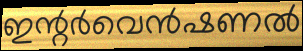
ഇന്റർവെൻഷണൽ